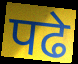
पढे